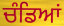
ਚੰਡਿਆਂ